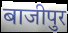
बाजीपुर